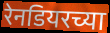
रेनडियरच्या